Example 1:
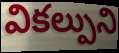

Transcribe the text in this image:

వికల్పుని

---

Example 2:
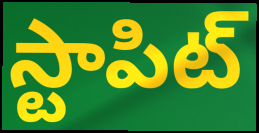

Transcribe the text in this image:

స్టాపిట్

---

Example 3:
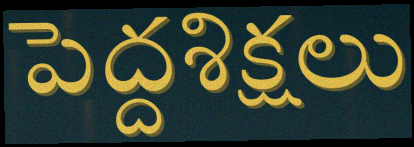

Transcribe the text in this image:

పెద్దశిక్షలు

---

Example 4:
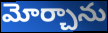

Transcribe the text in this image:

మోర్చాను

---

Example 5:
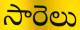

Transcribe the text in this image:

సారెలు